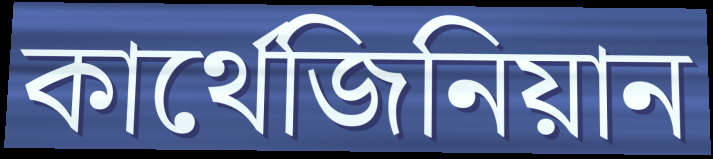
কার্থেজিনিয়ান